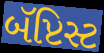
બૅપ્ટિસ્ટ